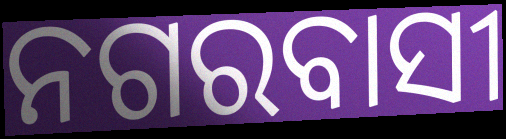
ନଗରବାସୀ